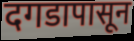
दगडापासून